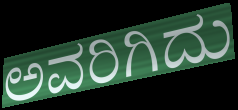
ಅವರಿಗಿದು